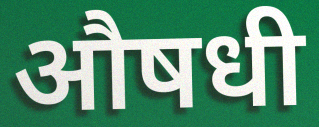
औषधी